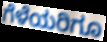
ಗೆಳೆಯರಿಗೂ